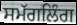
ਸਮੱਗਲਿੰਗ